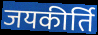
जयकीर्ति